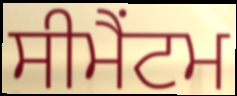
ਸੀਮੈਂਟਮ